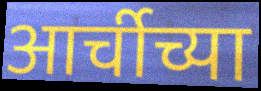
आर्चीच्या